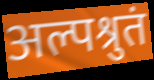
अल्पश्रुतं